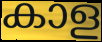
കാള